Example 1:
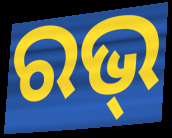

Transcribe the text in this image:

ରଭ୍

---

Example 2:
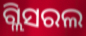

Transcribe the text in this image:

ଗ୍ଲିସରଲ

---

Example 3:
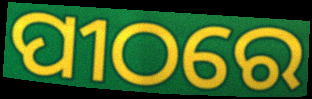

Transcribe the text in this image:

ପୀଠରେ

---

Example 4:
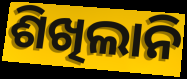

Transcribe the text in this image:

ଶିଖିଲାନି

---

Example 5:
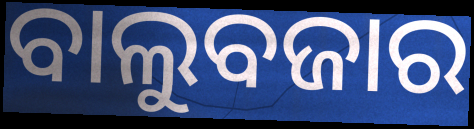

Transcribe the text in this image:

ବାଲୁବଜାର